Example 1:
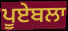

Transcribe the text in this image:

ਪੂਏਬਲਾ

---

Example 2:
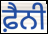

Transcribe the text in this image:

ਫ਼ੈਨੀ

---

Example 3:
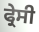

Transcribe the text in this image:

ਫ੍ਰੇਸੀ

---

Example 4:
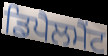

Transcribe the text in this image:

ਡਿਪੈਲਮੈਂਟ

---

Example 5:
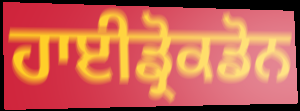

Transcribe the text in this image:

ਹਾਈਡ੍ਰੋਕਡੋਨ